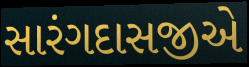
સારંગદાસજીએ